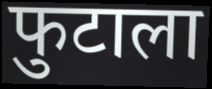
फुटाला